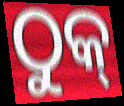
ଠୁକ୍